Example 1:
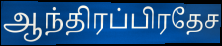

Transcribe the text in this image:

ஆந்திரப்பிரதேச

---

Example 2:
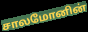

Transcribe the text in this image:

சாலமோனின்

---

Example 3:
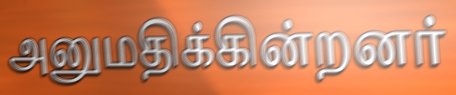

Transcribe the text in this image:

அனுமதிக்கின்றனர்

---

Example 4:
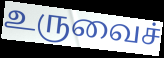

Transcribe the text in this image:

உருவைச்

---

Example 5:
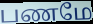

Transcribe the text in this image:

பணமே